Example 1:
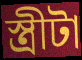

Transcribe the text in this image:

স্ত্রীটা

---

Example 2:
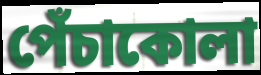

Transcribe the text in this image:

পেঁচাকোলা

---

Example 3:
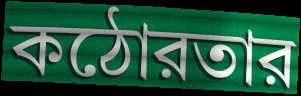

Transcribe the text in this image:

কঠোরতার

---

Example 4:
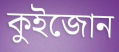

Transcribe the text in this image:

কুইজোন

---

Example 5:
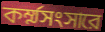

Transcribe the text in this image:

কর্ম্মসংসারে